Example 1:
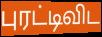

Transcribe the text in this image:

புரட்டிவிட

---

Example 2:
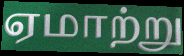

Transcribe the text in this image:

ஏமாற்று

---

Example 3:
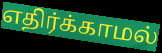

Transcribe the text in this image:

எதிர்க்காமல்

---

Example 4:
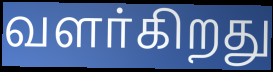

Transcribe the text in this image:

வளர்கிறது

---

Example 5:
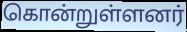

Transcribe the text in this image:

கொன்றுள்ளனர்